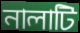
নালাটি